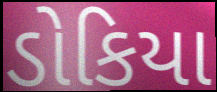
ડોકિયા